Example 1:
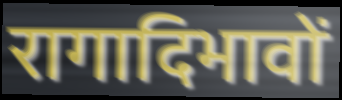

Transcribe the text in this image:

रागादिभावों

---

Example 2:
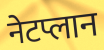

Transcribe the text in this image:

नेटप्लान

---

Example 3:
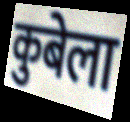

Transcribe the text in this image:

कुबेला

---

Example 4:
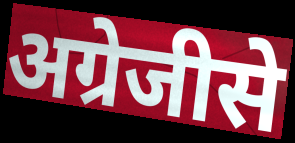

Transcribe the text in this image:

अग्रेजीसे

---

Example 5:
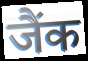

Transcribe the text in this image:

जैंक